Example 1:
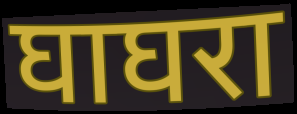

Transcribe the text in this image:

घाघरा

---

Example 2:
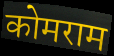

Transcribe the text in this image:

कोमराम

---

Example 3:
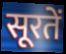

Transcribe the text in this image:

सूरतें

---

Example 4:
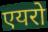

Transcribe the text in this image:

एयरो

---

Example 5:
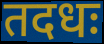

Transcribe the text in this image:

तदधः